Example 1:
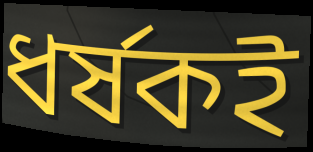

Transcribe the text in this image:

ধর্ষকই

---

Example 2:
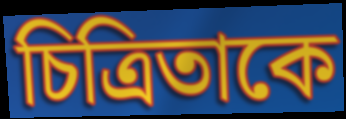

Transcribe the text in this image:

চিত্রিতাকে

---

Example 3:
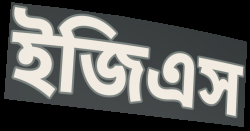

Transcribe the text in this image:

ইজিএস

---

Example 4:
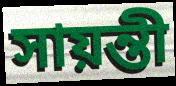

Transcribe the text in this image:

সায়ন্তী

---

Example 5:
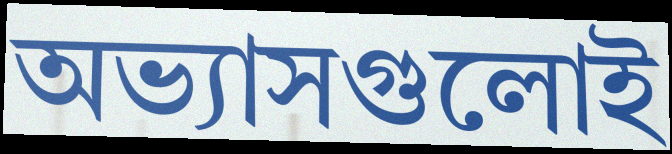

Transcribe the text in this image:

অভ্যাসগুলোই